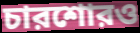
চারশোরও